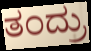
ತಂದ್ರು